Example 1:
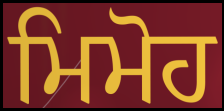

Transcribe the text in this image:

ਮਿਮੋਹ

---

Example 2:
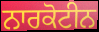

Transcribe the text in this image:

ਨਾਰਕੋਟੀਨ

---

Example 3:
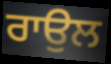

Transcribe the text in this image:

ਰਾਉਲ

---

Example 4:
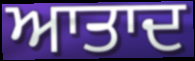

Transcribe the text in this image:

ਆਤਾਦ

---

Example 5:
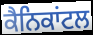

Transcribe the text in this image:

ਕੈਨਿਕਾਂਟਲ